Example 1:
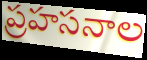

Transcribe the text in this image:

ప్రహసనాల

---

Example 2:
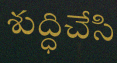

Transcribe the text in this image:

శుద్ధిచేసి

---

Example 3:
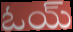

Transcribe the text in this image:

ఓయ్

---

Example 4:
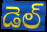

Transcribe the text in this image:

డెల్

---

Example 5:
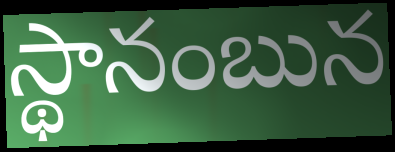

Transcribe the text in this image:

స్థానంబున